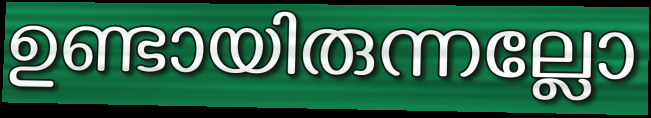
ഉണ്ടായിരുന്നല്ലോ